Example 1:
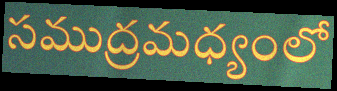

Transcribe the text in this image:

సముద్రమధ్యంలో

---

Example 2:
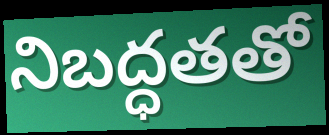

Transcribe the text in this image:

నిబద్ధతతో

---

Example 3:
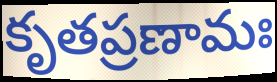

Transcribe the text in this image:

కృతప్రణామః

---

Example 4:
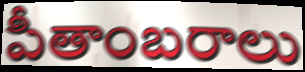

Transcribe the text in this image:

పీతాంబరాలు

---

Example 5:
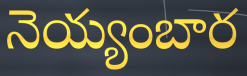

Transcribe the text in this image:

నెయ్యంబార